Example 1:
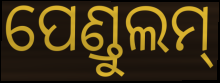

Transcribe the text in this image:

ପେଣ୍ଡୁଲମ୍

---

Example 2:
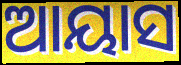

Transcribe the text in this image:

ଆୟାସ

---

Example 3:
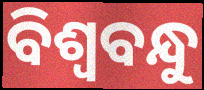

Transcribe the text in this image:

ବିଶ୍ୱବନ୍ଧୁ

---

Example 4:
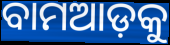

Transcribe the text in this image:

ବାମଆଡ଼କୁ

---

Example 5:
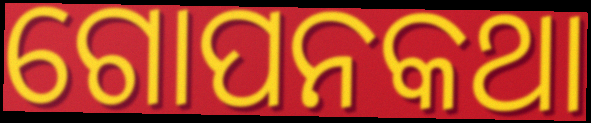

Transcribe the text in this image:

ଗୋପନକଥା